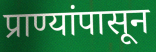
प्राण्यांपासून